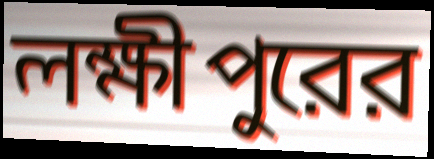
লক্ষীপুরের